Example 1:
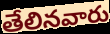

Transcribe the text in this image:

తేలినవారు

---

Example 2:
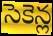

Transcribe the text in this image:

సెకెన్ల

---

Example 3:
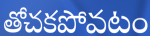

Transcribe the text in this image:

తోచకపోవటం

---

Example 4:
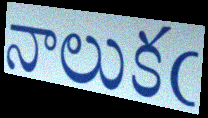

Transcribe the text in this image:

నాలుకఁ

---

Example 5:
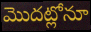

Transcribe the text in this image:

మొదట్లోనూ